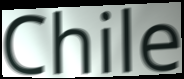
Chile